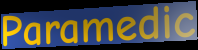
Paramedic